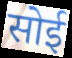
सोई